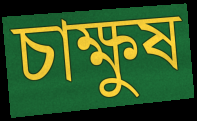
চাক্ষুষ